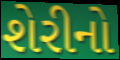
શેરીનો